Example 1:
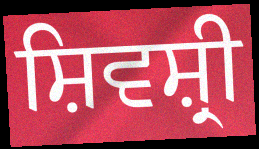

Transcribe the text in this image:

ਸ਼ਿਵਸ਼੍ਰੀ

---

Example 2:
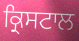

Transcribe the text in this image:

ਕ੍ਰਿਸਟਾਲ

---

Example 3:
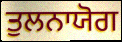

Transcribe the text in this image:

ਤੁਲਨਾਯੋਗ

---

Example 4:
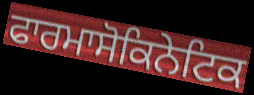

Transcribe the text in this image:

ਫਾਰਮਾਸੋਕਿਨੇਟਿਕ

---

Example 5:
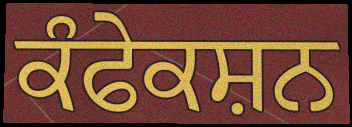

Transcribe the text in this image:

ਕੰਫੇਕਸ਼ਨ